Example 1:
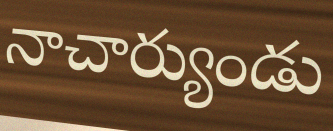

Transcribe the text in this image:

నాచార్యుండు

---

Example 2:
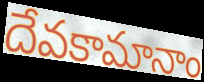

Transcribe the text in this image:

దేవకామానాం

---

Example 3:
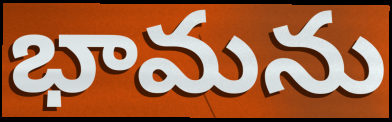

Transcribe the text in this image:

భామను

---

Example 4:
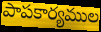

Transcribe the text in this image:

పాపకార్యముల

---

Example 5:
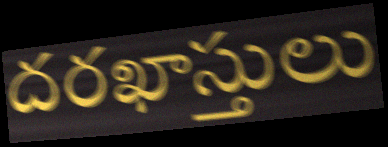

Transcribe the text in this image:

దరఖాస్తులు